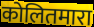
कोलितमारा